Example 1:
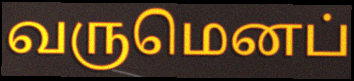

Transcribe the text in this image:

வருமெனப்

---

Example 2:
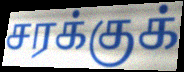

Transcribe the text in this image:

சரக்குக்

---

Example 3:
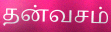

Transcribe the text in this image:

தன்வசம்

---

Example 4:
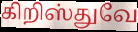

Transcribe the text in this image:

கிறிஸ்துவே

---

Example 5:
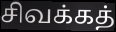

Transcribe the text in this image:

சிவக்கத்